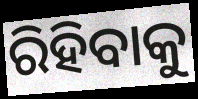
ରିହିବାକୁ